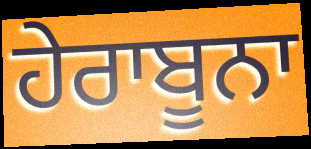
ਹੇਰਾਬੂਨਾ